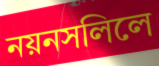
নয়নসলিলে